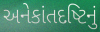
અનેકાંતદષ્ટિનું